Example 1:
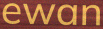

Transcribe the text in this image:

ewan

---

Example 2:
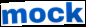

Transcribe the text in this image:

mock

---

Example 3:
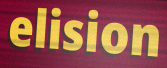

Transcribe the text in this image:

elision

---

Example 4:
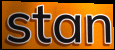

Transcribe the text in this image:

stan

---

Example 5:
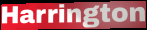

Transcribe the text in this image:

Harrington